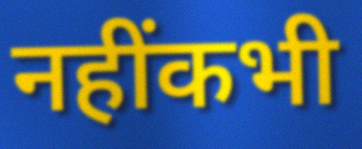
नहींकभी